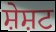
ਸ਼ੇਸ਼ਟ